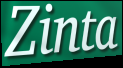
Zinta